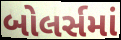
બોલર્સમાં